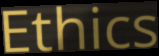
Ethics